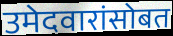
उमेदवारांसोबत